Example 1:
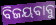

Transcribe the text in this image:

ବିଜୟବାବୁ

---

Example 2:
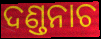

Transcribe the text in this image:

ଦଣ୍ଡନାଚ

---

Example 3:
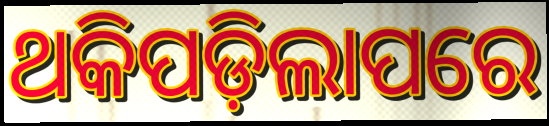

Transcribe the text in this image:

ଥକିପଡ଼ିଲାପରେ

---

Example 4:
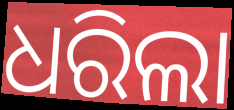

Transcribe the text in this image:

ଧରିଲା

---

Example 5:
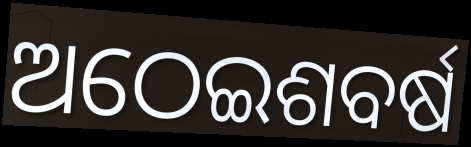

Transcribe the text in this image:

ଅଠେଇଶବର୍ଷ